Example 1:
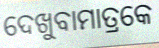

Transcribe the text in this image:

ଦେଖୁବାମାତ୍ରକେ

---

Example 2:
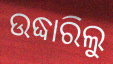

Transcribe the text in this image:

ଉଦ୍ଧାରିଲୁ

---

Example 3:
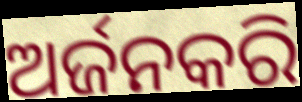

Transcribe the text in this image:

ଅର୍ଜନକରି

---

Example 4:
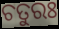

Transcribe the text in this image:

ଚତୁରଃ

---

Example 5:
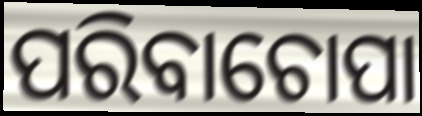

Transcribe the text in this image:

ପରିବାଚୋପା